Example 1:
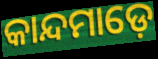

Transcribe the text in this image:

କାନ୍ଦମାଡ଼େ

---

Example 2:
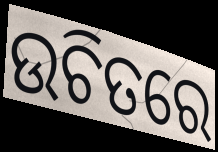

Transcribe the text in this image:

ଉଚିତରେ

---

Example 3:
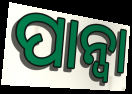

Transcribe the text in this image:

ପାନ୍ଵା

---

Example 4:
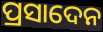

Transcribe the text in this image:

ପ୍ରସାଦେନ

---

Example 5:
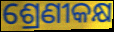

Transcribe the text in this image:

ଶ୍ରେଣୀକକ୍ଷ